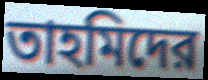
তাহমিদের